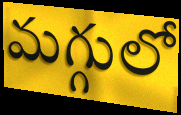
మగ్గులో